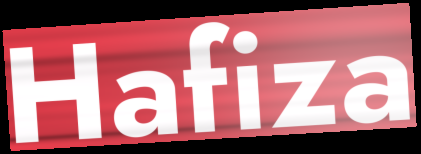
Hafiza